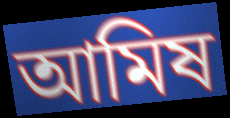
আমিষ